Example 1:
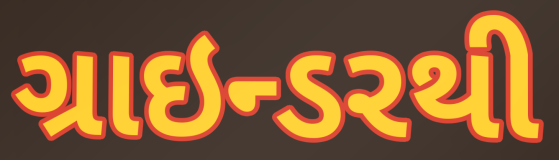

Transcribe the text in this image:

ગ્રાઇન્ડરથી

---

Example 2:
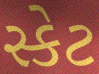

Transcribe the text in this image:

સ્કેટ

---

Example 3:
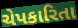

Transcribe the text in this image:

ચેપકારિતા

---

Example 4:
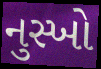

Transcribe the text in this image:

નુસ્ખો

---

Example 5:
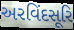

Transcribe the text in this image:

અરવિંદસૂરિ